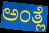
ಅಂತ್ಲೆ